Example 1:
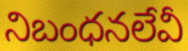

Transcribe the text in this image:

నిబంధనలేవీ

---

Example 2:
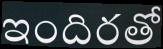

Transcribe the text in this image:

ఇందిరతో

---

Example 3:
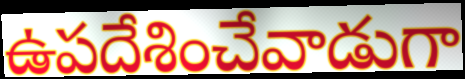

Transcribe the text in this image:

ఉపదేశించేవాడుగా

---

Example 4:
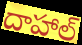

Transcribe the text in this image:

దాహాల్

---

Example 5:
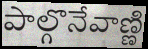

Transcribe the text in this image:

పాల్గొనేవాణ్ణి